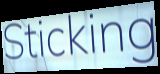
Sticking